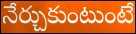
నేర్చుకుంటుంటే